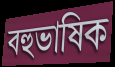
বহুভাষিক